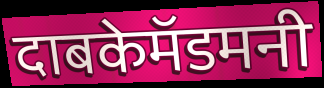
दाबकेमॅडमनी